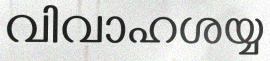
വിവാഹശയ്യ